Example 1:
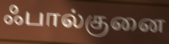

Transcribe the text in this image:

ஃபால்குனை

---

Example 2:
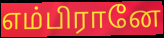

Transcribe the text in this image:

எம்பிரானே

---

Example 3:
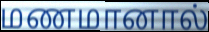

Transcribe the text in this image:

மணமானால்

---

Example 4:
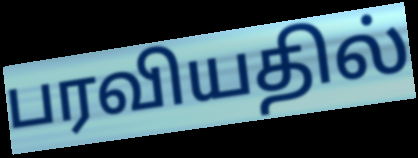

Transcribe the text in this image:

பரவியதில்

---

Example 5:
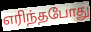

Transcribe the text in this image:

எரிந்தபோது